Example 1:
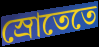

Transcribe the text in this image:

স্রোতেতে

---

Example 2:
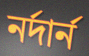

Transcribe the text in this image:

নর্দার্ন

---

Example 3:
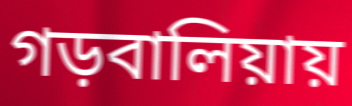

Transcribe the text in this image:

গড়বালিয়ায়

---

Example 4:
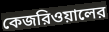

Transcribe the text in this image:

কেজরিওয়ালের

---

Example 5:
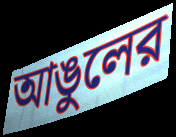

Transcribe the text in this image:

আঙুলের